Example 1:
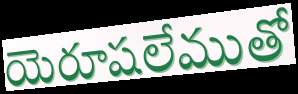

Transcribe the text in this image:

యెరూషలేముతో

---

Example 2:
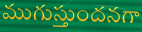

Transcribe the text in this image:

ముగుస్తుందనగా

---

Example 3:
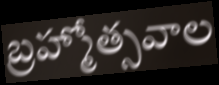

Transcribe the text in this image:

బ్రహ్మోత్సవాల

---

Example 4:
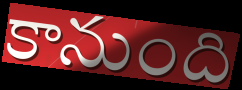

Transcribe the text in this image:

కానుంది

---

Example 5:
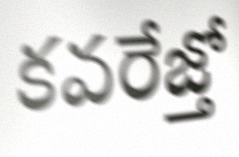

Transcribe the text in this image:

కవరేజ్తో